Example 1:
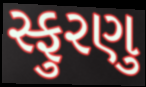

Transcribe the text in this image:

સ્ફુરણુ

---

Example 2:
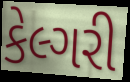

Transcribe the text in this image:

કેલ્ગરી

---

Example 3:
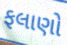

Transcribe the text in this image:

ફલાણો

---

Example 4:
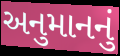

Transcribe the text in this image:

અનુમાનનું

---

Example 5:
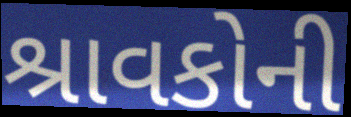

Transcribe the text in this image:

શ્રાવકોની